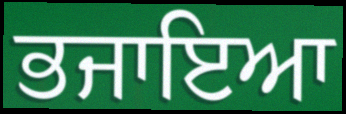
ਭਜਾਇਆ